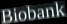
Biobank